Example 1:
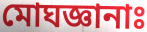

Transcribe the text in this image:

মোঘজ্ঞানাঃ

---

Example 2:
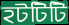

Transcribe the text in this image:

হটটিটি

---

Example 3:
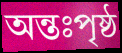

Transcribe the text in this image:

অন্তঃপৃষ্ঠ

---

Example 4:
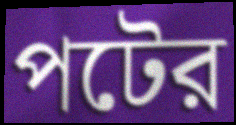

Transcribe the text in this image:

পটের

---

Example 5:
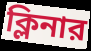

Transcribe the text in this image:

ক্লিনার